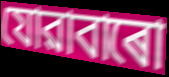
যোৱাবাৰো